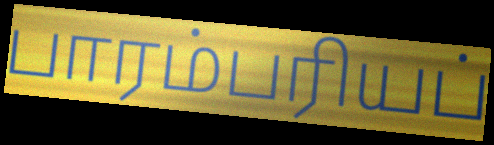
பாரம்பரியப்